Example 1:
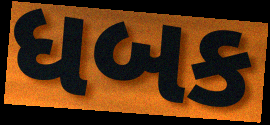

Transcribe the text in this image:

ધબક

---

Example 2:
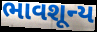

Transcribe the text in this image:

ભાવશૂન્ય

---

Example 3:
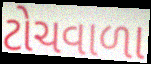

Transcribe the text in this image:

ટોચવાળા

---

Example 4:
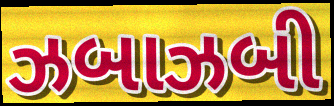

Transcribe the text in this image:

ઝબાઝબી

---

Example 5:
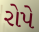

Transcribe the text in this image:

રોપે